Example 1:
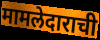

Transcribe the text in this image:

मामलेदाराची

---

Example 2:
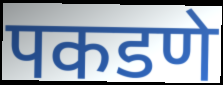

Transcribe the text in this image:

पकडणे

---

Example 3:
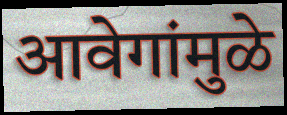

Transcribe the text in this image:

आवेगांमुळे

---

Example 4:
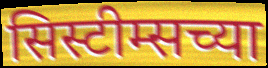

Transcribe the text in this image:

सिस्टीम्सच्या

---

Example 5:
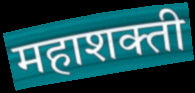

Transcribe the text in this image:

महाशक्ती